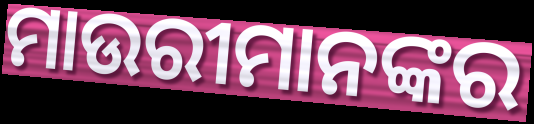
ମାଉରୀମାନଙ୍କର